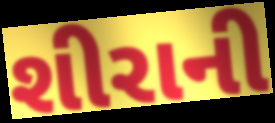
શીરાની